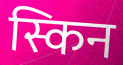
स्किन